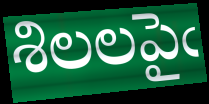
శిలలపైఁ